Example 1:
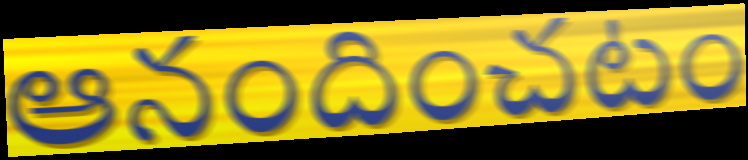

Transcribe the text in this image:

ఆనందించటం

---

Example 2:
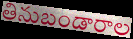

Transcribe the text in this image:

తినుబండారాల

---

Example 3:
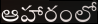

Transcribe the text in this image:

ఆహారంలో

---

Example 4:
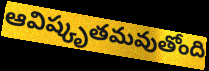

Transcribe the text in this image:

ఆవిష్కృతమవుతోంది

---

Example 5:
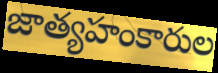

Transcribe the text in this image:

జాత్యహంకారుల